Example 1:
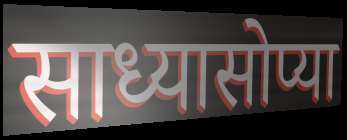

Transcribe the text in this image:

साध्यासोप्या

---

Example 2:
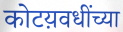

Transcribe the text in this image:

कोटय़वधींच्या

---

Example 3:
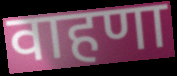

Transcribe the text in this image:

वाहणा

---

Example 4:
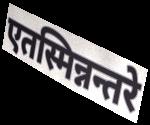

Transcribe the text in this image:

एतस्मिन्नन्तरे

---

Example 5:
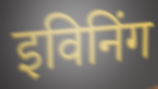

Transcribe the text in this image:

इविनिंग